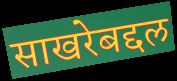
साखरेबद्दल